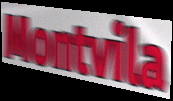
Montvila